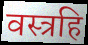
वस्त्रहि